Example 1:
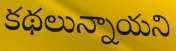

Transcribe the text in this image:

కథలున్నాయని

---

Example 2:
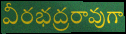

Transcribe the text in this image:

వీరభద్రరావుగా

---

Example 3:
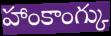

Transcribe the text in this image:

హాంకాంగ్కు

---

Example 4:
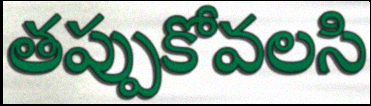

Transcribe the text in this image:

తప్పుకోవలసి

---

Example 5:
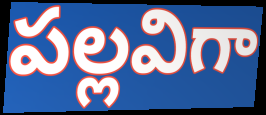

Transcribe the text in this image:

పల్లవిగా